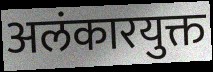
अलंकारयुक्त